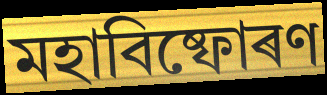
মহাবিষ্ফোৰণ